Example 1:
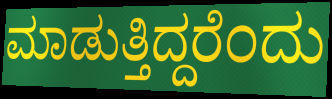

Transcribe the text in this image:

ಮಾಡುತ್ತಿದ್ದರೆಂದು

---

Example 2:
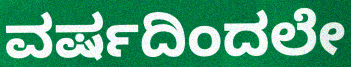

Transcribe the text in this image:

ವರ್ಷದಿಂದಲೇ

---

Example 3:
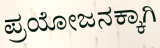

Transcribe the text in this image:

ಪ್ರಯೋಜನಕ್ಕಾಗಿ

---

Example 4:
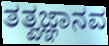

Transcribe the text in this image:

ತತ್ವಜ್ಞಾನವ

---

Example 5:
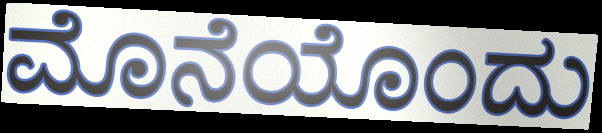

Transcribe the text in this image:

ಮೊನೆಯೊಂದು